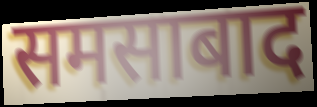
समसाबाद